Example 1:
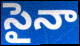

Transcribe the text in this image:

సైనా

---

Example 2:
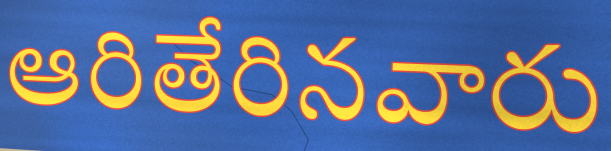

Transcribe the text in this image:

ఆరితేరినవారు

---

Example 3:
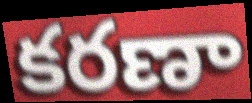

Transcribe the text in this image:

కరణా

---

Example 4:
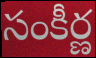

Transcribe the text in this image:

సంకీర్ణ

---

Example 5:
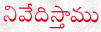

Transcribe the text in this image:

నివేదిస్తాము